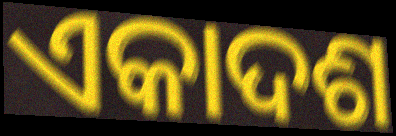
ଏକାଦଶ